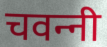
चवन्नी